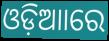
ଓଡ଼ିଆାରେ